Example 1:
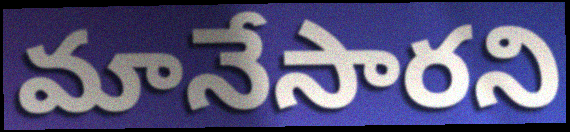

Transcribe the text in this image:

మానేసారని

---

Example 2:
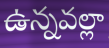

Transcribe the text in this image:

ఉన్నవల్లా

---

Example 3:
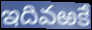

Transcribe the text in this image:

ఇదివఱకే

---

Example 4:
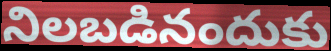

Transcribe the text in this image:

నిలబడినందుకు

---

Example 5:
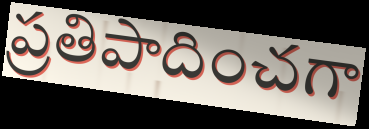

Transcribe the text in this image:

ప్రతిపాదించగా